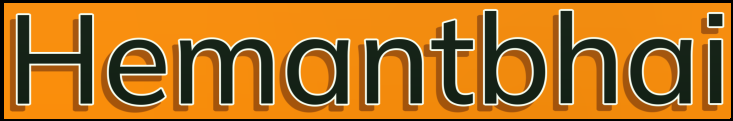
Hemantbhai